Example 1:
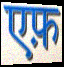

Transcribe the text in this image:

एफ़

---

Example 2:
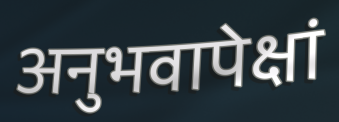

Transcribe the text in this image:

अनुभवापेक्षां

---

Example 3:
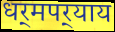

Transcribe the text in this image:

धर्मपर्याय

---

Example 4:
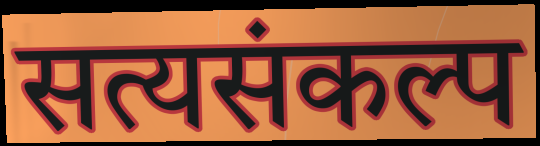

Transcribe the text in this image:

सत्यसंकल्प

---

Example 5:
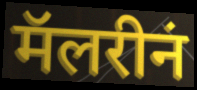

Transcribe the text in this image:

मॅलरीनं